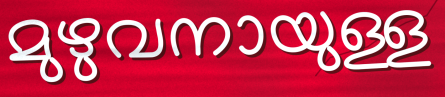
മുഴുവനായുള്ള